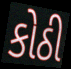
કોઠી